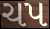
ચપ